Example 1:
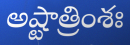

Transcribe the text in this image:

అష్టాత్రింశః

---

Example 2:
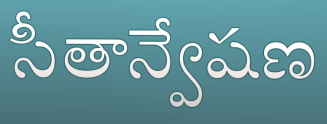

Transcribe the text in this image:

సీతాన్వేషణ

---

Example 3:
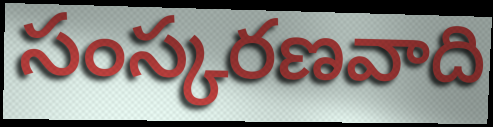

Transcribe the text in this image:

సంస్కరణవాది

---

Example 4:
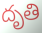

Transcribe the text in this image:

దృతి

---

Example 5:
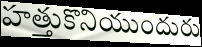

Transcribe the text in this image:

హత్తుకొనియుందురు